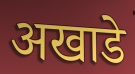
अखाडे